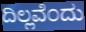
ದಿಲ್ಲವೆಂದು